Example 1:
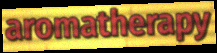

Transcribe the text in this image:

aromatherapy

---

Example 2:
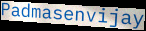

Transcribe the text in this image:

Padmasenvijay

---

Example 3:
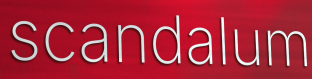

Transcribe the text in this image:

scandalum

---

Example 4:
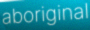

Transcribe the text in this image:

aboriginal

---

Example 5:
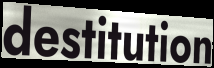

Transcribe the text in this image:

destitution